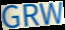
GRW